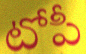
టోపీ